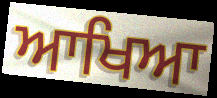
ਆਖਿਆ